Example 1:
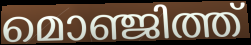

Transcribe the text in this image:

മൊഞ്ജിത്ത്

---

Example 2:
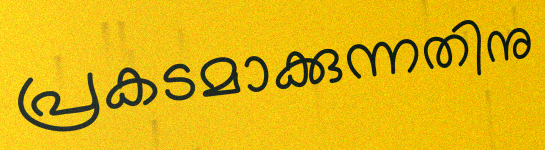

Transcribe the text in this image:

പ്രകടമാക്കുന്നതിനു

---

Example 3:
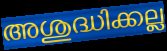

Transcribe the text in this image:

അശുദ്ധിക്കല്ല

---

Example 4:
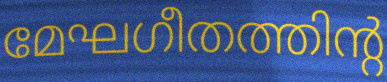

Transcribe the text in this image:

മേഘഗീതത്തിന്റ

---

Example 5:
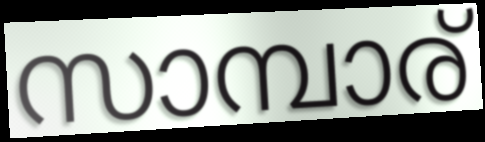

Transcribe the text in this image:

സാമ്പാര്